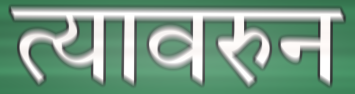
त्यावरुन